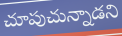
చూపుచున్నాడని